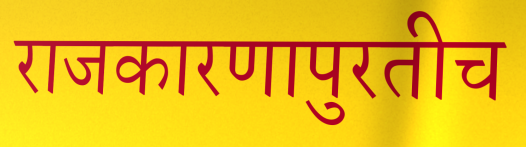
राजकारणापुरतीच